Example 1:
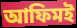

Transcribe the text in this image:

আফিমই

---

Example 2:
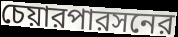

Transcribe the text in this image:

চেয়ারপারসনের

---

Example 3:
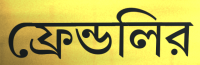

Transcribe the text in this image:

ফ্রেন্ডলির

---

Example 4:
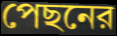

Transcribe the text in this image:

পেছনের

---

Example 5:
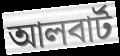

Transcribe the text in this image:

আলবার্ট